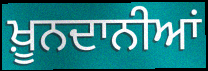
ਖ਼ੂਨਦਾਨੀਆਂ